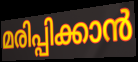
മരിപ്പിക്കാൻ